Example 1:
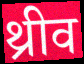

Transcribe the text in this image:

थ्रीव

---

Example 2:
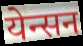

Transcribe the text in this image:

येन्सन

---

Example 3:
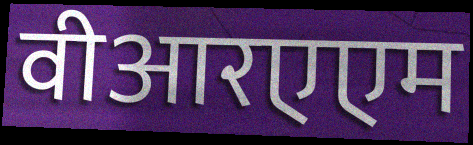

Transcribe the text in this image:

वीआरएएम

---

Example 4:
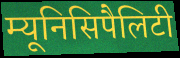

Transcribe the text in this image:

म्यूनिसिपैलिटी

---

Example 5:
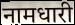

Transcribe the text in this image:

नामधारी